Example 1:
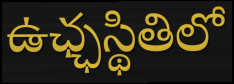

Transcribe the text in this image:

ఉఛ్ఛస్థితిలో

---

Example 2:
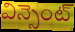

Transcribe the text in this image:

విన్సెంట్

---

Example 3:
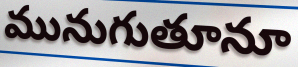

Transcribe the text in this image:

మునుగుతూనూ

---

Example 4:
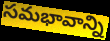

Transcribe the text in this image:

సమభావాన్ని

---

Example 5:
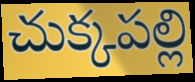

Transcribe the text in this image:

చుక్కపల్లి